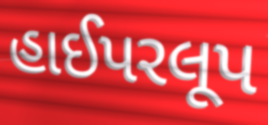
હાઈપરલૂપ